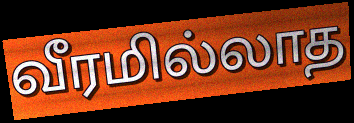
வீரமில்லாத